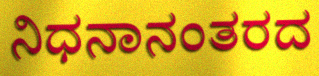
ನಿಧನಾನಂತರದ